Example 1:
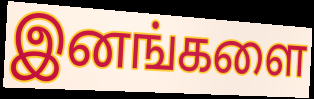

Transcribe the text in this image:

இனங்களை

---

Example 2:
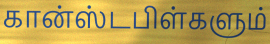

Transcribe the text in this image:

கான்ஸ்டபிள்களும்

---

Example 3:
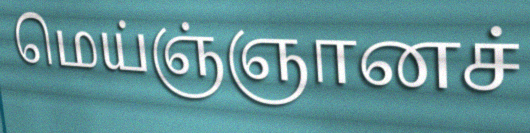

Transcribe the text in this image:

மெய்ஞ்ஞானச்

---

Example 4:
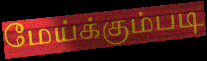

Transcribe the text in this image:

மேய்க்கும்படி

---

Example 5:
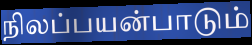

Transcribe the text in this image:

நிலப்பயன்பாடும்